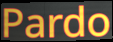
Pardo